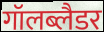
गॉलब्लैडर